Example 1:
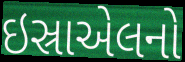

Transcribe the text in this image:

ઇસ્રાએલનો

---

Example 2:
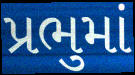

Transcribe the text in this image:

પ્રભુમાં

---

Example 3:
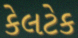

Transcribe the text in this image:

કેલટેક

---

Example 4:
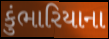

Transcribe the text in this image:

કુંભારિયાના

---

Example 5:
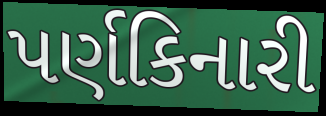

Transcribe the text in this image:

પર્ણકિનારી